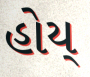
હોય્